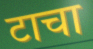
टाचा